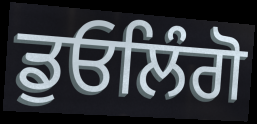
ਡੁਓਲਿੰਗੋ